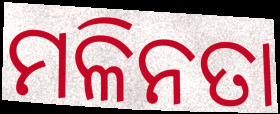
ମଳିନତା